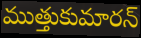
ముత్తుకుమారన్